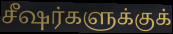
சீஷர்களுக்குக்